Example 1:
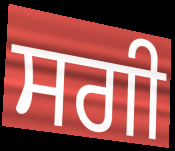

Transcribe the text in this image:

ਸਗੀ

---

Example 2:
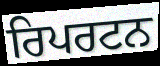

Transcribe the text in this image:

ਰਿਪਰਟਨ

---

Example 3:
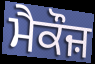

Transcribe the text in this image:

ਮੈਕੌਜ਼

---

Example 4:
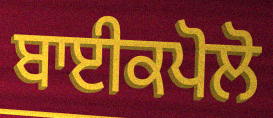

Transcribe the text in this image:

ਬਾਈਕਪੋਲੋ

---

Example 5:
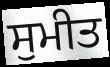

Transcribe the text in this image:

ਸੁਮੀਤ